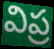
విప్ర